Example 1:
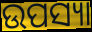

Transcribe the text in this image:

ଉପସ୍ୟା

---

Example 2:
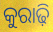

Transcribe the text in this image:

କୁରାଢ଼ି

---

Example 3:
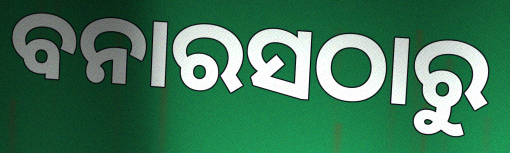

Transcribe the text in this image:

ବନାରସଠାରୁ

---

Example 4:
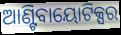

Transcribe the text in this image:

ଆଣ୍ଟିବାୟୋଟିକ୍ସର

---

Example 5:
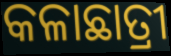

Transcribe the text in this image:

କଳାଛାତ୍ରୀ